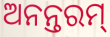
ଅନନ୍ତରମ୍